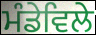
ਮੰਡੇਵਿਲੇ